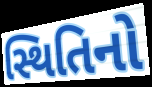
સ્થિતિનો